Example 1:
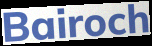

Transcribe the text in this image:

Bairoch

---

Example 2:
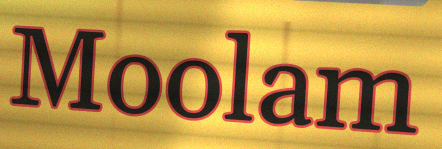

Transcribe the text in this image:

Moolam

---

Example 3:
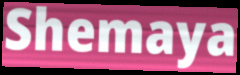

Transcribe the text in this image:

Shemaya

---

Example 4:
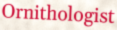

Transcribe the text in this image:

Ornithologist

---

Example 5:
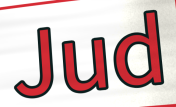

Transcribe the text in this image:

Jud